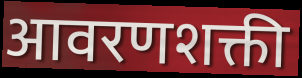
आवरणशक्ती